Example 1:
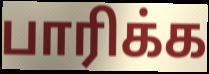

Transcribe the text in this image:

பாரிக்க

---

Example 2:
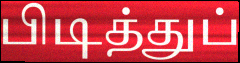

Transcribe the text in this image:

பிடித்துப்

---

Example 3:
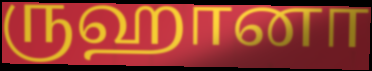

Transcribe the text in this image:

ருஹானா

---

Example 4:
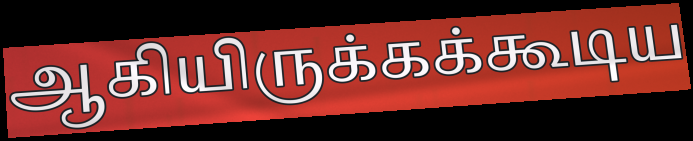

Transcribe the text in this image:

ஆகியிருக்கக்கூடிய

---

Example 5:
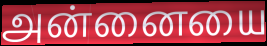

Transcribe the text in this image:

அன்னையை